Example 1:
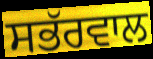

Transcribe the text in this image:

ਸਭੱਰਵਾਲ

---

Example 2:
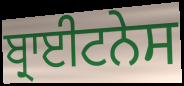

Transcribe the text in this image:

ਬ੍ਰਾਈਟਨੇਸ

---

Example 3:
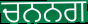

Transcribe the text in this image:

ਚਨਨਗ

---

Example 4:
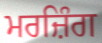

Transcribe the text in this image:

ਮਰਜ਼ਿੰਗ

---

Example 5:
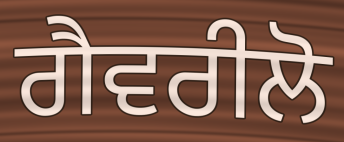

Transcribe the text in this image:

ਗੈਵਰੀਲੋ